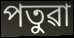
পতুৱা